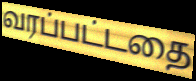
வரப்பட்டதை